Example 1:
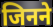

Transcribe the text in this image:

जिनने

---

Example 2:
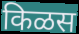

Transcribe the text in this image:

किळस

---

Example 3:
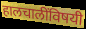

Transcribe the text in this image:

हालचालींविषयी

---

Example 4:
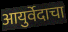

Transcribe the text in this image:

आयुर्वेदाचा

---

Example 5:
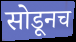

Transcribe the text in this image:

सोडूनच